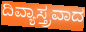
ದಿವ್ಯಾಸ್ತ್ರವಾದ